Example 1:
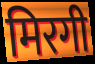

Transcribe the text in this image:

मिरगी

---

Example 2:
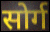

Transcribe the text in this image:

सोर्ग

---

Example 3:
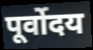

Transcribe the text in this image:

पूर्वोदय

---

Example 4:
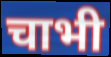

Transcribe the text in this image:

चाभी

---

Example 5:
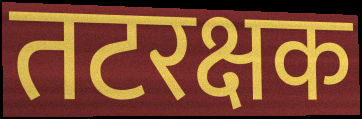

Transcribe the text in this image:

तटरक्षक